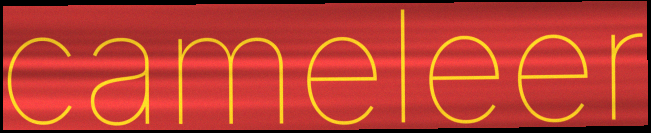
cameleer